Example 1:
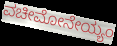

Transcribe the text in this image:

ವಚೀಮೋನೇಯ್ಯಂ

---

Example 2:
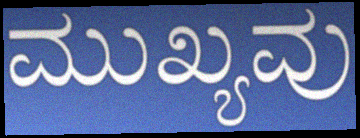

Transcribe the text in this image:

ಮುಖ್ಯವು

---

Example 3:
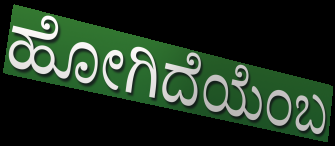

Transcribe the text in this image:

ಹೋಗಿದೆಯೆಂಬ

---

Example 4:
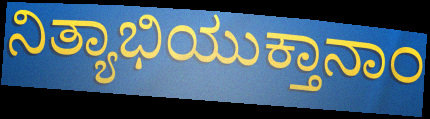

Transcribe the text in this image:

ನಿತ್ಯಾಭಿಯುಕ್ತಾನಾಂ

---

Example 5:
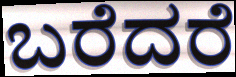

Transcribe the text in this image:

ಬರೆದರೆ